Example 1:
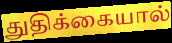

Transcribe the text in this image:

துதிக்கையால்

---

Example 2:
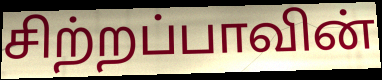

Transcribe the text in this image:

சிற்றப்பாவின்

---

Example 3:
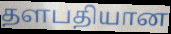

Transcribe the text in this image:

தளபதியான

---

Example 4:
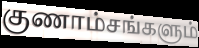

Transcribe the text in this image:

குணாம்சங்களும்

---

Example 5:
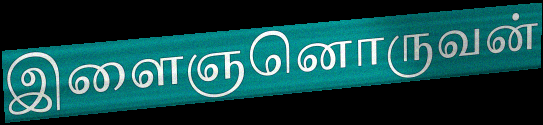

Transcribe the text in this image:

இளைஞனொருவன்